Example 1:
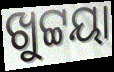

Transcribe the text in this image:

ଖୁଟ୍ଟୟା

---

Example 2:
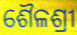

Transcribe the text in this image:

ଶୈଳଶ୍ରୀ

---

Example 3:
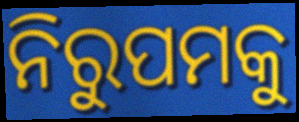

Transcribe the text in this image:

ନିରୁପମକୁ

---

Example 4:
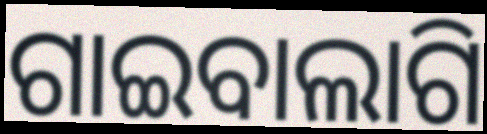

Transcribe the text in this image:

ଗାଇବାଲାଗି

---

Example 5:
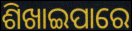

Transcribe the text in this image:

ଶିଖାଇପାରେ